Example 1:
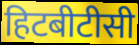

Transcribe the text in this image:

हिटबीटीसी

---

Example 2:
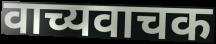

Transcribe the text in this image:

वाच्यवाचक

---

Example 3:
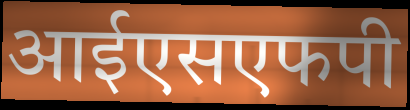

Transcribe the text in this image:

आईएसएफपी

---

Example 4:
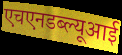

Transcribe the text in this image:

एचएनडब्ल्यूआई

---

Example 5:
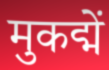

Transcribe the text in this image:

मुकद्में